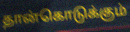
தான்கொடுக்கும்